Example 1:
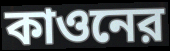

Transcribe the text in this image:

কাওনের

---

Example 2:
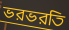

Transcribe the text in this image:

ভরভরতি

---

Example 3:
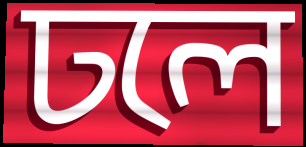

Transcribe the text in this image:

ঢলে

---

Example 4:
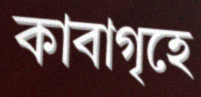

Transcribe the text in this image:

কাবাগৃহে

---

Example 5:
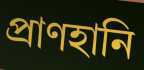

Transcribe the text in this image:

প্রাণহানি